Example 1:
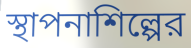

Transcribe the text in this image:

স্থাপনাশিল্পের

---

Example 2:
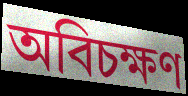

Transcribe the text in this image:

অবিচক্ষণ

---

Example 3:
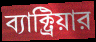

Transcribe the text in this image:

ব্যাক্ট্রিয়ার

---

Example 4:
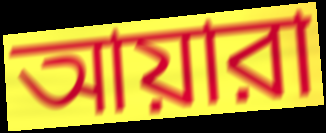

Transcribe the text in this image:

আয়ারা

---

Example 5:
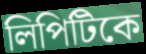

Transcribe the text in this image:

লিপিটিকে